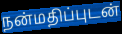
நன்மதிப்புடன்